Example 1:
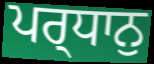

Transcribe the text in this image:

ਪਰ੍ਧਾਨੁ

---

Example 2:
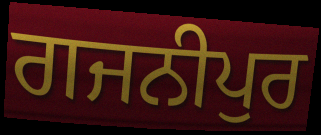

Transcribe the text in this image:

ਗਜਨੀਪੁਰ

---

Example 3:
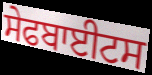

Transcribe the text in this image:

ਸੇਫਬਾਈਟਸ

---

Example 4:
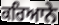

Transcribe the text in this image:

ਕਰਿਆਨੇ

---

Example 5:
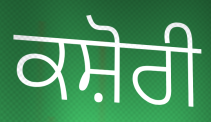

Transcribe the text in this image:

ਕਸ਼ੋਰੀ